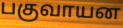
பகுவாயன